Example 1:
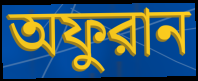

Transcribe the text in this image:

অফুরান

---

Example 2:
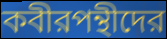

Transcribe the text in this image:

কবীরপন্থীদের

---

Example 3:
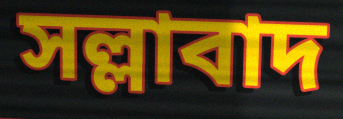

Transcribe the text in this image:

সল্লাবাদ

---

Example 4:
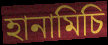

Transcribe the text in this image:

হানামিচি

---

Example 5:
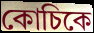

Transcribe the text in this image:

কোচিকে